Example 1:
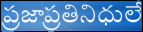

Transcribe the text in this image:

ప్రజాప్రతినిధులే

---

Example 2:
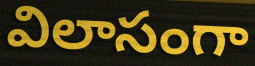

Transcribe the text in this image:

విలాసంగా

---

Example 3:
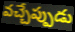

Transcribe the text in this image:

వచ్చేప్పుడు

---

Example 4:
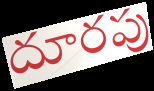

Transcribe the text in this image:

దూరపు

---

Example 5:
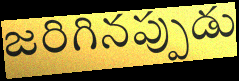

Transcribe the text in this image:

జరిగినప్పుడు